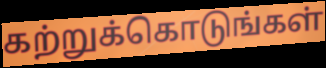
கற்றுக்கொடுங்கள்